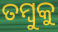
ତମ୍ବୁକୁ